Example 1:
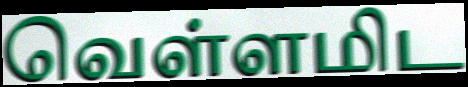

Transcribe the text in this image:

வெள்ளமிட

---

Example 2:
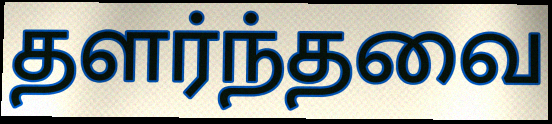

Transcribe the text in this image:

தளர்ந்தவை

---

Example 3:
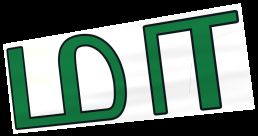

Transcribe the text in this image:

மா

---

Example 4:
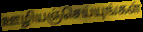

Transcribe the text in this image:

ஊழியஞ்செய்யுங்கள்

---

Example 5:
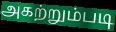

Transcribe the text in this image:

அகற்றும்படி